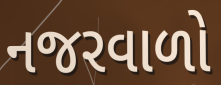
નજરવાળો